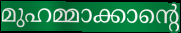
മുഹമ്മാക്കാന്റെ